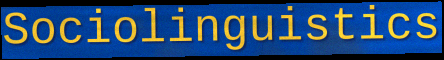
Sociolinguistics